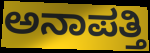
ಅನಾಪತ್ತಿ